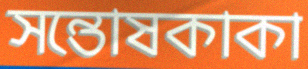
সন্তোষকাকা